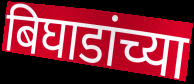
बिघाडांच्या